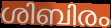
ശിബിരം